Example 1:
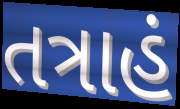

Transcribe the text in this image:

તત્રાહં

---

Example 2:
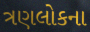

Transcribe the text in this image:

ત્રણલોકના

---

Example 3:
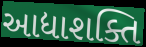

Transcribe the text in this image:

આદ્યાશક્તિ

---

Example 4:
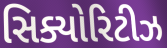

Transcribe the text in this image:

સિક્યોરિટીઝ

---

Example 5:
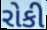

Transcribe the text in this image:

રોકી